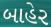
બાહેર